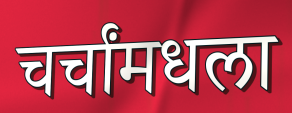
चर्चांमधला